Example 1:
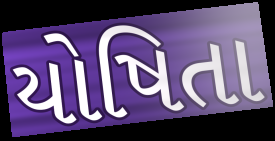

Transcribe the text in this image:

યોષિતા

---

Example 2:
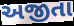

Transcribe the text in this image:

અજીતા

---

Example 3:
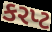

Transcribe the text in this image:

કરપ્ટ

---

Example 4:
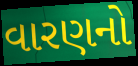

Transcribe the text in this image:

વારણનો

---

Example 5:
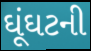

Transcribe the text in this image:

ઘૂંઘટની